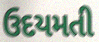
ઉદયમતી